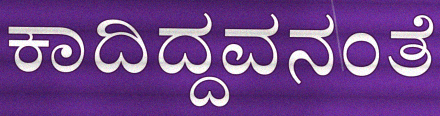
ಕಾದಿದ್ದವನಂತೆ